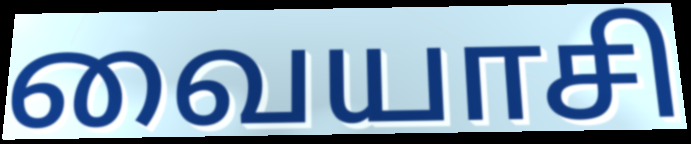
வையாசி